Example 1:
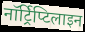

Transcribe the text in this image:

नॉर्ट्रिप्टिलाइन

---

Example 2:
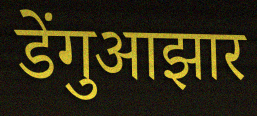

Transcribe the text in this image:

डेंगुआझार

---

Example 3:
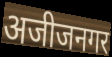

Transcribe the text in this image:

अजीजनगर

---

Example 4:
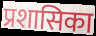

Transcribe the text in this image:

प्रशासिका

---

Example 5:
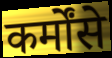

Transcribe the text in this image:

कर्मोंसे